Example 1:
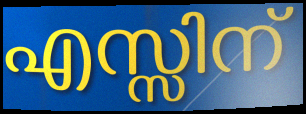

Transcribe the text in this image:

എസ്സിന്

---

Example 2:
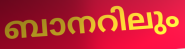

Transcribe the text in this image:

ബാനറിലും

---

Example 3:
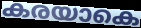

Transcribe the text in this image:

കരയാകെ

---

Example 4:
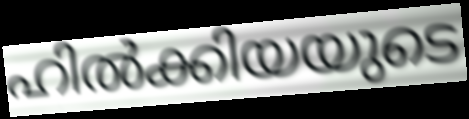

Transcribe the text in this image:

ഹിൽക്കിയയുടെ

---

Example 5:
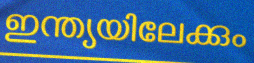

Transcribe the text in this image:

ഇന്ത്യയിലേക്കും